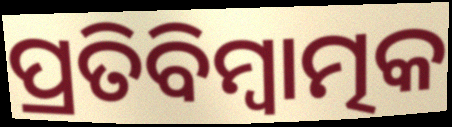
ପ୍ରତିବିମ୍ବାତ୍ମକ